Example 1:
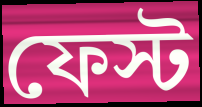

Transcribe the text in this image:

ফেস্ট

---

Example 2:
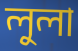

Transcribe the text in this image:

লুলা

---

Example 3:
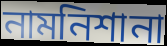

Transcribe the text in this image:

নামনিশানা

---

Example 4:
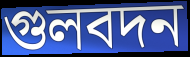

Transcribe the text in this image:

গুলবদন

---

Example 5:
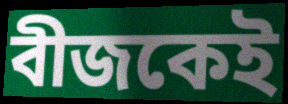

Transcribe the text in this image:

বীজকেই